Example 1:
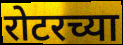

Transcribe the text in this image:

रोटरच्या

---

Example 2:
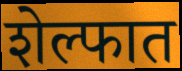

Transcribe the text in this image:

शेल्फात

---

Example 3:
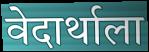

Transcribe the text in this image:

वेदार्थाला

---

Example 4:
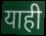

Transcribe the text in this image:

याही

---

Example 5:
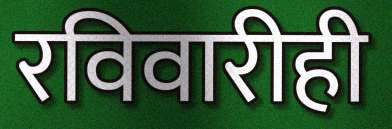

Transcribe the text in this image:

रविवारीही